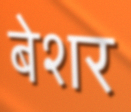
बेशर